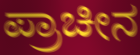
ಪ್ರಾಚೀನ